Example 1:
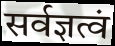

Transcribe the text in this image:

सर्वज्ञत्वं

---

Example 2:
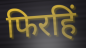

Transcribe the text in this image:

फिरहिं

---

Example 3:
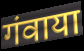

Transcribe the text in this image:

गंवाया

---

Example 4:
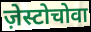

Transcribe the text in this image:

ज़ेस्टोचोवा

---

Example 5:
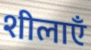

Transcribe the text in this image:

शीलाएँ